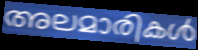
അലമാരികൾ